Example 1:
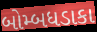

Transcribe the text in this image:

બોમ્બધડાકા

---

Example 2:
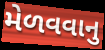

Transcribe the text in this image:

મેળવવાનુ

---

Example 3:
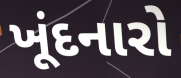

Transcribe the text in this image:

ખૂંદનારો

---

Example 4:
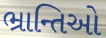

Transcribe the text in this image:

ભ્રાન્તિઓ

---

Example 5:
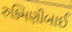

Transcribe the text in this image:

રુક્મિણીબાઈ